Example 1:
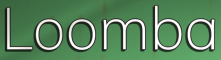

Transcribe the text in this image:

Loomba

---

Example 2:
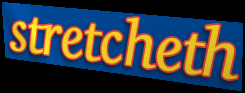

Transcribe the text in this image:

stretcheth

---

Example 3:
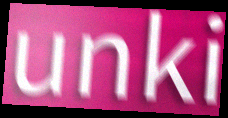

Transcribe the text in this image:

unki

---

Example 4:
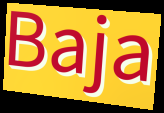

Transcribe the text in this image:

Baja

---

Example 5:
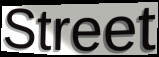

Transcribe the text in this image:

Street